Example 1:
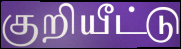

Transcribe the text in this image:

குறியீட்டு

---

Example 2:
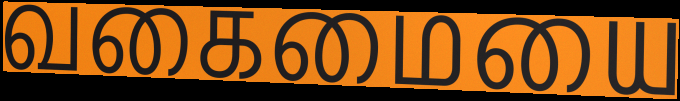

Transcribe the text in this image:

வகைமையை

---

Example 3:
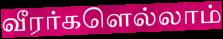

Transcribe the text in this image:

வீரர்களெல்லாம்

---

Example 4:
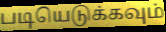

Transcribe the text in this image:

படியெடுக்கவும்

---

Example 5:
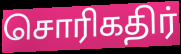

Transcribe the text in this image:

சொரிகதிர்